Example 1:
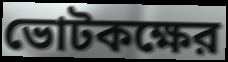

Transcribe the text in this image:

ভোটকক্ষের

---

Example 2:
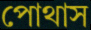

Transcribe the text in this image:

পোথাস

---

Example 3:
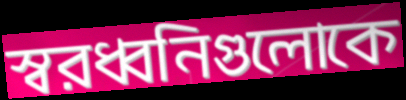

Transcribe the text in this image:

স্বরধ্বনিগুলোকে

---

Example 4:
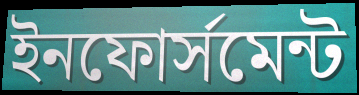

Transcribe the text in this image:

ইনফোর্সমেন্ট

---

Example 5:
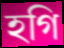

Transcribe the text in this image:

হগি